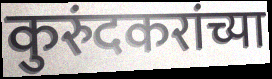
कुरुंदकरांच्या